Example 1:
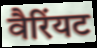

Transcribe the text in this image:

वैरिंयट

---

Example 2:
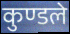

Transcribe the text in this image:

कुण्डले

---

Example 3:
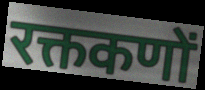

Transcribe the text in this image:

रक्तकणों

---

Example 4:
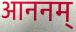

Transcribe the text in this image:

आननम्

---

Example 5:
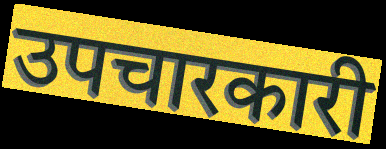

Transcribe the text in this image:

उपचारकारी